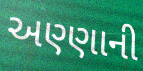
અણ્ણાની